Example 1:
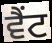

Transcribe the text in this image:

ਵੈਂਟ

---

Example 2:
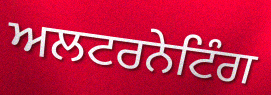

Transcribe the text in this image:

ਅਲਟਰਨੇਟਿੰਗ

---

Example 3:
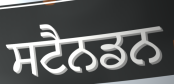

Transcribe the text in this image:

ਸਟੈਨਡਨ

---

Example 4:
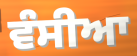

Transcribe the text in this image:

ਵੰਸੀਆ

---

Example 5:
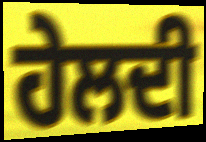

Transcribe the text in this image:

ਹੇਲਦੀ